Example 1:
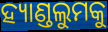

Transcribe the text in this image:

ହ୍ୟାଣ୍ଡଲୁମକୁ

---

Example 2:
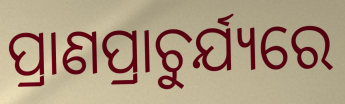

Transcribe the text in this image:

ପ୍ରାଣପ୍ରାଚୁର୍ଯ୍ୟରେ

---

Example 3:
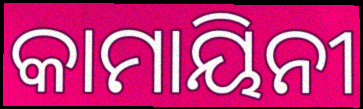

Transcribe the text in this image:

କାମାୟିନୀ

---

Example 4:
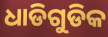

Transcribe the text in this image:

ଧାଡିଗୁଡିକ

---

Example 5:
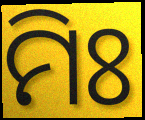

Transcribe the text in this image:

ମିଃ